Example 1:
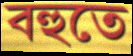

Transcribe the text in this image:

বহুতে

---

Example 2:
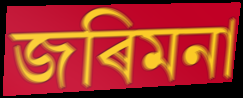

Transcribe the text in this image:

জৰিমনা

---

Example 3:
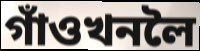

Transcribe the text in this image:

গাঁওখনলৈ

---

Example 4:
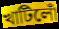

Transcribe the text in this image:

খাটিলোঁ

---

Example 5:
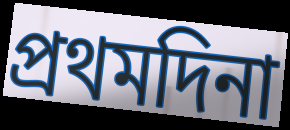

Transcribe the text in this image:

প্ৰথমদিনা